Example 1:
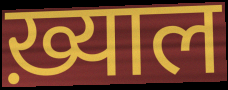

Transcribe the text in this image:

ख़्याल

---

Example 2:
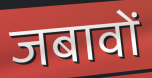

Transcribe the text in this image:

जबावों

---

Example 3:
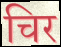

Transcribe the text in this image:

चिर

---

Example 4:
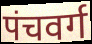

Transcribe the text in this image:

पंचवर्ग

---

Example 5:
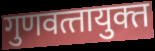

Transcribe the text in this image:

गुणवत्‍तायुक्‍त